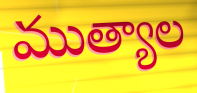
ముత్యాల